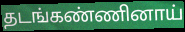
தடங்கண்ணினாய்